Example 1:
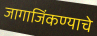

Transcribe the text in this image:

जागाजिंकण्याचे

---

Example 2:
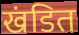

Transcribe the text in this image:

खंडित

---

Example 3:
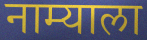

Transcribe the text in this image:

नाम्याला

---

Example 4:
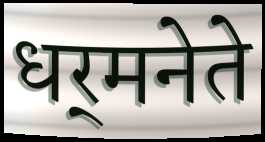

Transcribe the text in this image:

धर्मनेते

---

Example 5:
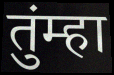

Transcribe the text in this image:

तुंम्हा